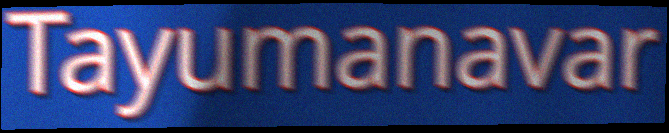
Tayumanavar